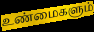
உண்மைகளும்